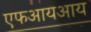
एफआयआय